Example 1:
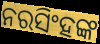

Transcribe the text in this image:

ନରସିଂହଙ୍କ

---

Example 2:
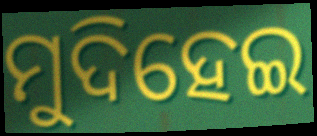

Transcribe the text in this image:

ମୁଦିହେଇ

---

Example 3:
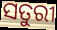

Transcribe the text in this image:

ସତୁରୀ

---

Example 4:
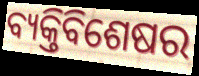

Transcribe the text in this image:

ବ୍ୟକ୍ତିବିଶେଷର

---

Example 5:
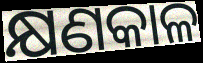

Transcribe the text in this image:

କ୍ଷଣକାଳ